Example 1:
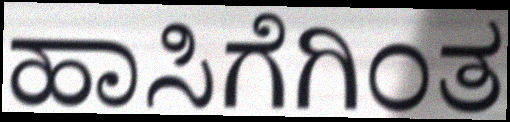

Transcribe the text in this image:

ಹಾಸಿಗೆಗಿಂತ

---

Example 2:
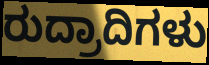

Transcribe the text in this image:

ರುದ್ರಾದಿಗಳು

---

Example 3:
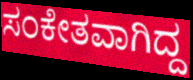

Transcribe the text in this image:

ಸಂಕೇತವಾಗಿದ್ದ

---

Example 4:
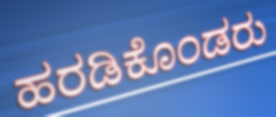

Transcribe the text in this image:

ಹರಡಿಕೊಂಡರು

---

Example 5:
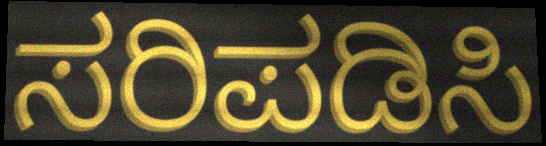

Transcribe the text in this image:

ಸರಿಪಡಿಸಿ